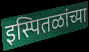
इस्पितळांच्या